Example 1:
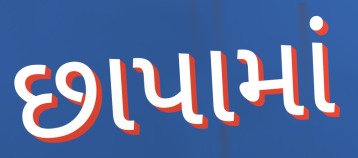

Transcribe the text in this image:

છાપામાં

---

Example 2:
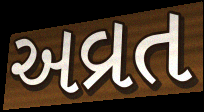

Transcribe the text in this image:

અવ્રત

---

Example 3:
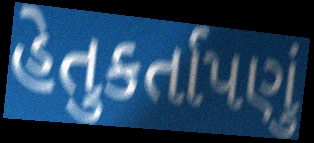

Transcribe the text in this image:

હેતુકર્તાપણું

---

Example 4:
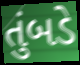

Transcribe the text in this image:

તુંબડે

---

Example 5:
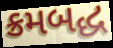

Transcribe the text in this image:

ક્રમબદ્ધ